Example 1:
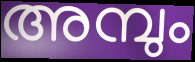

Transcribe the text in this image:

അമ്പും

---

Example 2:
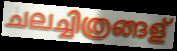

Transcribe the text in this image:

ചലച്ചിത്രങ്ങള്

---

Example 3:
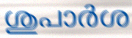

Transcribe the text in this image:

ശുപാർശ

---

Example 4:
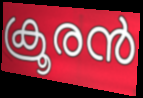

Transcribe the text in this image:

ക്രൂരൻ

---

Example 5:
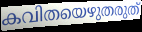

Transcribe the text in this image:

കവിതയെഴുതരുത്